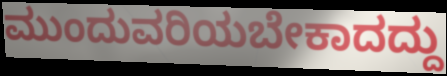
ಮುಂದುವರಿಯಬೇಕಾದದ್ದು